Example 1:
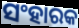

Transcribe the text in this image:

ସଂହାରକ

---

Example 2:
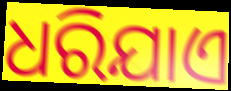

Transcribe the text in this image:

ଧରିଯାଏ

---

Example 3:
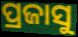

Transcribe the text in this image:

ପ୍ରଜାସୁ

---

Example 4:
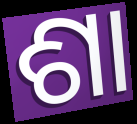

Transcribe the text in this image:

ଶା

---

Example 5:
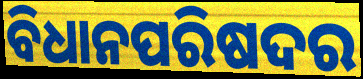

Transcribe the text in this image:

ବିଧାନପରିଷଦର